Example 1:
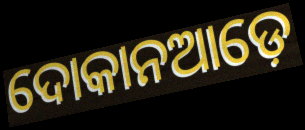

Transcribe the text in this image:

ଦୋକାନଆଡ଼େ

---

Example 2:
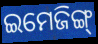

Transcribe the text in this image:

ଇମେଜିଙ୍ଗ୍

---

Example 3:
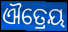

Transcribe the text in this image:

ଐତ୍ରେୟ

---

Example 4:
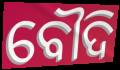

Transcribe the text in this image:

ବୌଦି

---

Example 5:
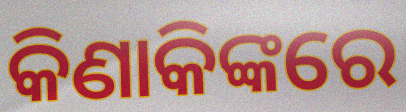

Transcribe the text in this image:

କିଣାକିଙ୍କରେ